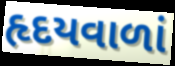
હૃદયવાળાં